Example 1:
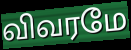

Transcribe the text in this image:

விவரமே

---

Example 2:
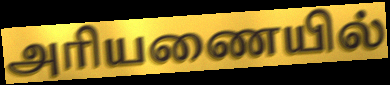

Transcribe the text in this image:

அரியணையில்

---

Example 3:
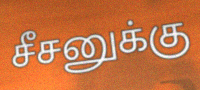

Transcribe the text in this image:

சீசனுக்கு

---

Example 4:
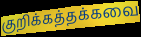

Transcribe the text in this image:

குறிக்கத்தக்கவை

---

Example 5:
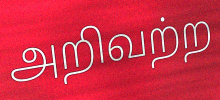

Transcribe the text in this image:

அறிவற்ற